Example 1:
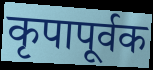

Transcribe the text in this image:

कृपापूर्वक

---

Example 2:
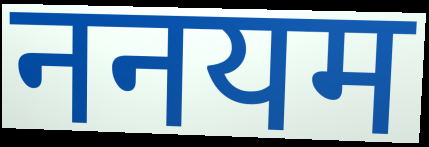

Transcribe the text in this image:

ननयम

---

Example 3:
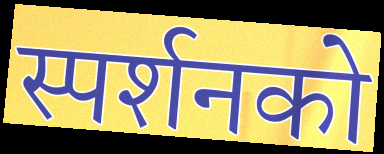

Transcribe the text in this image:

स्पर्शनको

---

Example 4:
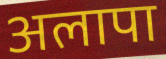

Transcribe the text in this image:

अलापा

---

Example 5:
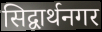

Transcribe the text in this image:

सिद्वार्थनगर